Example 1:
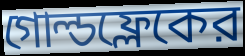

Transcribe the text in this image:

গোল্ডফ্লেকের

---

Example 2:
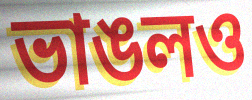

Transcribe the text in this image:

ভাঙলও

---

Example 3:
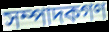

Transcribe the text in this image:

সম্পাদকগণ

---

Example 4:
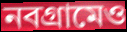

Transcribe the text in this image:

নবগ্রামেও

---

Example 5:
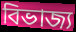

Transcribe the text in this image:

বিভাজ্য